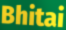
Bhitai